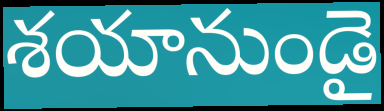
శయానుండై